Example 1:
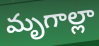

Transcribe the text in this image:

మృగాల్లా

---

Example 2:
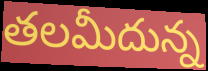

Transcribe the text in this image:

తలమీదున్న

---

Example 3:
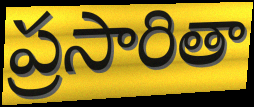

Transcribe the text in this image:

ప్రసారితా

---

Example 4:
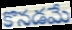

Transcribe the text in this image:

కొనడమే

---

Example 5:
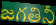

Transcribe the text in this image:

జగతినీ